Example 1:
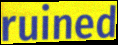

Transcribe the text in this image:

ruined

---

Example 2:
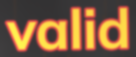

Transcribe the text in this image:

valid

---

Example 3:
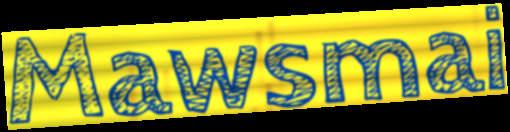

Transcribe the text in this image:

Mawsmai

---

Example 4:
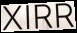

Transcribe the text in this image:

XIRR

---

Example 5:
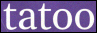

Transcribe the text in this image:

tatoo